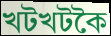
খটখটকৈ